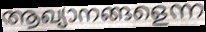
ആഖ്യാനങ്ങളെന്ന